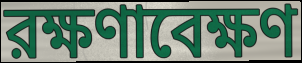
রক্ষণাবেক্ষণ